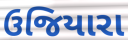
ઉજિયારા